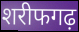
शरीफगढ़